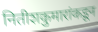
नितीशकुमारांकडून